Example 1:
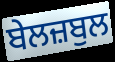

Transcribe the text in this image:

ਬੇਲਜ਼ਬੁਲ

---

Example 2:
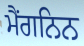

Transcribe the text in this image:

ਮੈਂਗਨਿਨ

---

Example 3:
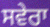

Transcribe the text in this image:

ਸਵੇਰਾ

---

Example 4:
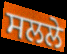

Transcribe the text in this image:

ਸਲਲੇ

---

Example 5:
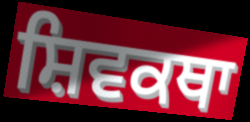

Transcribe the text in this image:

ਸ਼ਿਵਕਥਾ